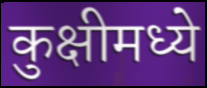
कुक्षीमध्ये